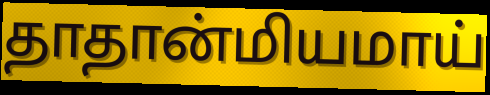
தாதான்மியமாய்